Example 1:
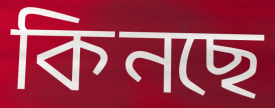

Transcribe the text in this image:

কিনছে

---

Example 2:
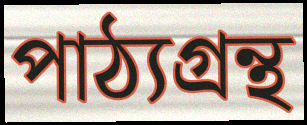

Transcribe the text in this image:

পাঠ্যগ্রন্থ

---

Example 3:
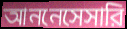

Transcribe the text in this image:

আননেসেসারি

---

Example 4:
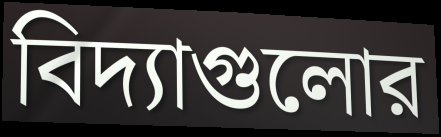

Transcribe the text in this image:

বিদ্যাগুলোর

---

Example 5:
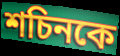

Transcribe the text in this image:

শচিনকে